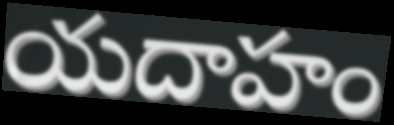
యదాహం